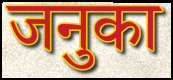
जनुका